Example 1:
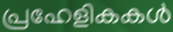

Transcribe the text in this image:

പ്രഹേളികകൾ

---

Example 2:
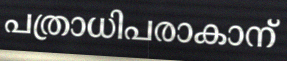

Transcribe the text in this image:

പത്രാധിപരാകാന്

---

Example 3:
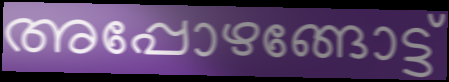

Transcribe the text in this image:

അപ്പോഴങ്ങോട്ട്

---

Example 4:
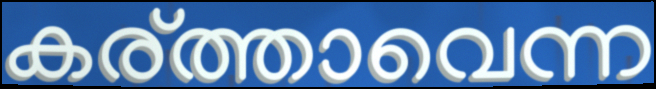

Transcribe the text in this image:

കര്ത്താവെന്ന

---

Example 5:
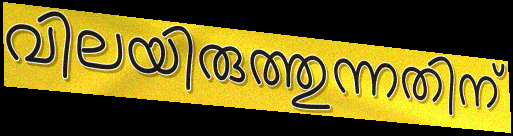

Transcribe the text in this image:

വിലയിരുത്തുന്നതിന്